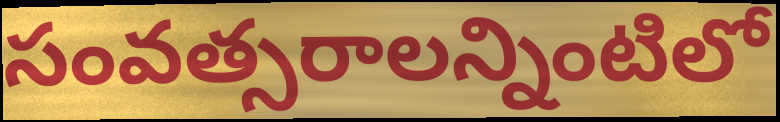
సంవత్సరాలన్నింటిలో